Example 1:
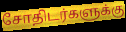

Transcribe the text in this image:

சோதிடர்களுக்கு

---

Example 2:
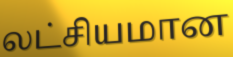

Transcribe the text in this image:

லட்சியமான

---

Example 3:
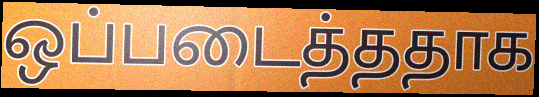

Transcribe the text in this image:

ஒப்படைத்ததாக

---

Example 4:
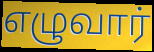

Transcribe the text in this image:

எழுவார்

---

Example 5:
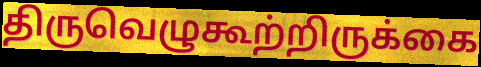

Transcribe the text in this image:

திருவெழுகூற்றிருக்கை